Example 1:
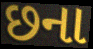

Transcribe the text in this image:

છના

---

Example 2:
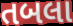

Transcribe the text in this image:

તબલા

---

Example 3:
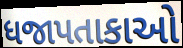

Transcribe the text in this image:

ધજાપતાકાઓ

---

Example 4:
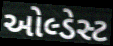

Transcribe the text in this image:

ઓલ્ડેસ્ટ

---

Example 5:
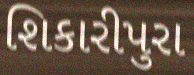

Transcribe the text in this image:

શિકારીપુરા